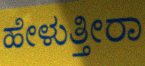
ಹೇಳುತ್ತೀರಾ